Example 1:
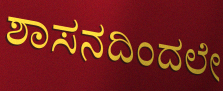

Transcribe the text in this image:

ಶಾಸನದಿಂದಲೇ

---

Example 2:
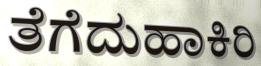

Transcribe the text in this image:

ತೆಗೆದುಹಾಕಿರಿ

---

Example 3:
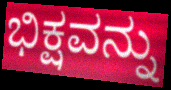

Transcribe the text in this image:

ಭಿಕ್ಷವನ್ನು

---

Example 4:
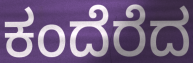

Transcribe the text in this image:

ಕಂದೆರೆದ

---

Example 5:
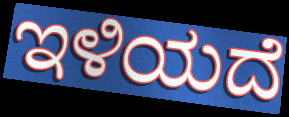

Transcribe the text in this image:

ಇಳಿಯದೆ